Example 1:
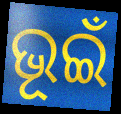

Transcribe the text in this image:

ଭୂଇଁ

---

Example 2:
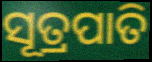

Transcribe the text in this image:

ସୂତ୍ରପାତି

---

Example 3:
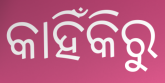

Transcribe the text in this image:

କାହିଁକିରୁ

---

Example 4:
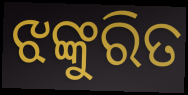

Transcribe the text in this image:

ଝଙ୍କୁରିତ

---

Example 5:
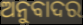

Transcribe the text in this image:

ଅନୁବାଦର